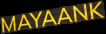
MAYAANK